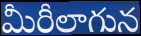
మీరీలాగున